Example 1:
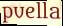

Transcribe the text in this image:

puella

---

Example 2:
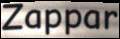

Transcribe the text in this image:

Zappar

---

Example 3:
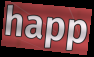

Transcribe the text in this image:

happ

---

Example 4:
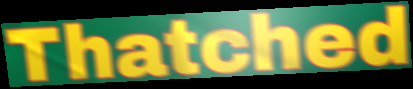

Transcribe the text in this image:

Thatched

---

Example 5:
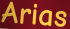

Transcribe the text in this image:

Arias